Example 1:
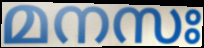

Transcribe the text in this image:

മനസഃ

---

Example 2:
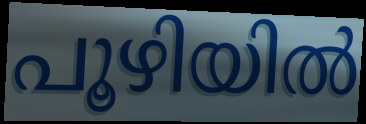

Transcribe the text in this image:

പൂഴിയിൽ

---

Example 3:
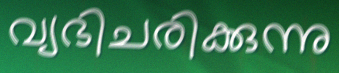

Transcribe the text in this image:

വ്യഭിചരിക്കുന്നു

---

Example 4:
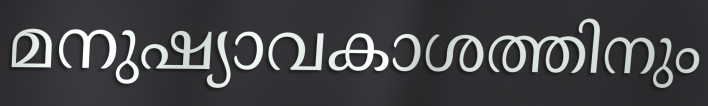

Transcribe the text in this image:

മനുഷ്യാവകാശത്തിനും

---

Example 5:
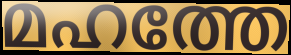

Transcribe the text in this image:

മഹത്തേ